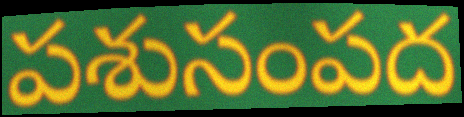
పశుసంపద